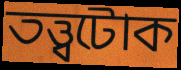
তত্ত্বটোক